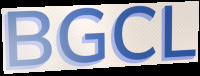
BGCL